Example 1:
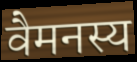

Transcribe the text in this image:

वैमनस्य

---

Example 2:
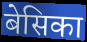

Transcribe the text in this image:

बेसिका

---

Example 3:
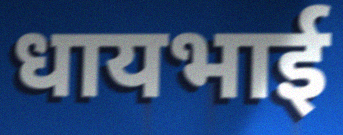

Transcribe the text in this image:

धायभाई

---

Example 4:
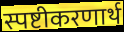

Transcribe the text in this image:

स्पष्टीकरणार्थ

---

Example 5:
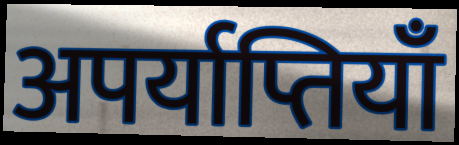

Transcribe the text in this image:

अपर्याप्तियाँ